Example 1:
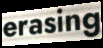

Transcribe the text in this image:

erasing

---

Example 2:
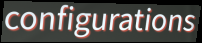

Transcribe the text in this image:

configurations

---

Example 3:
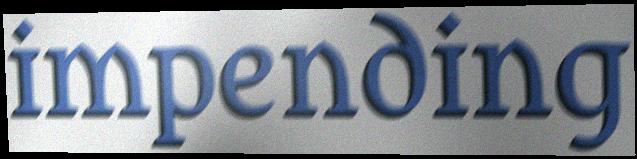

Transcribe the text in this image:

impending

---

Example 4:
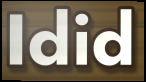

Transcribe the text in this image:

Idid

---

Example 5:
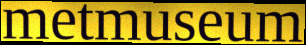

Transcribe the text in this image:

metmuseum